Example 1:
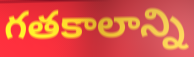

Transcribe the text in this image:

గతకాలాన్ని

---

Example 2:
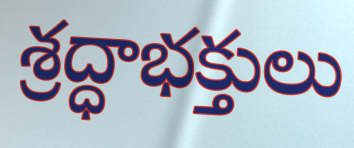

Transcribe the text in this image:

శ్రద్ధాభక్తులు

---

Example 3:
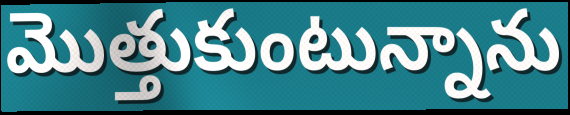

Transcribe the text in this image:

మొత్తుకుంటున్నాను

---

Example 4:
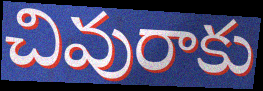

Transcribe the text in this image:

చివురాకు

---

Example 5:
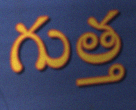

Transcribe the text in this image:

గుత్త